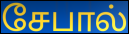
சேபால்